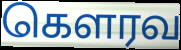
கெளரவ